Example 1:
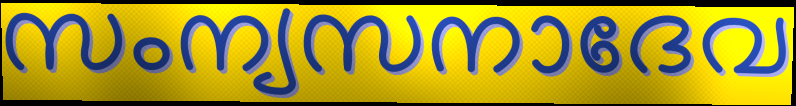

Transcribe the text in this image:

സംന്യസനാദേവ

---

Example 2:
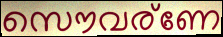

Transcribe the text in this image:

സൌവര്ണേ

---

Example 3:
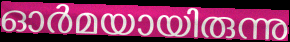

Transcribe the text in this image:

ഓർമയായിരുന്നു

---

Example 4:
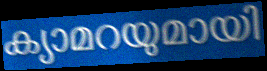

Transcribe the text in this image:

ക്യാമറയുമായി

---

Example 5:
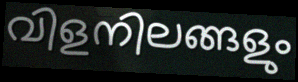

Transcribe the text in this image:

വിളനിലങ്ങളും